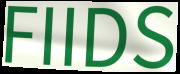
FIIDS